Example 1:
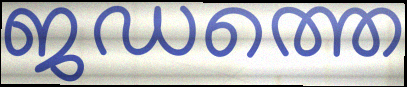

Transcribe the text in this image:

ജഡത്തെ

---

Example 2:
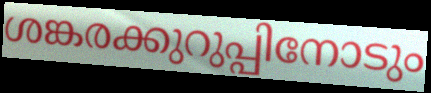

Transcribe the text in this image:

ശങ്കരക്കുറുപ്പിനോടും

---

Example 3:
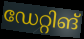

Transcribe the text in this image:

ഡേറ്റിങ്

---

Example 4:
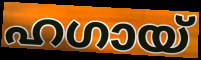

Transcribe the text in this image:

ഹഗായ്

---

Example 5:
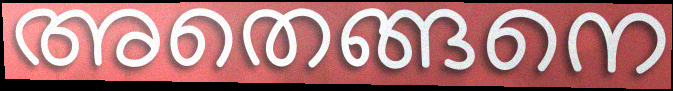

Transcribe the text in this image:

അതെങ്ങനെ